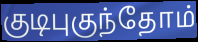
குடிபுகுந்தோம்